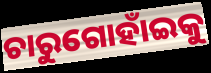
ଚାରୁଗୋହାଁଇକୁ